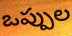
ఒప్పుల